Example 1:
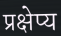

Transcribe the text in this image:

प्रक्षेप्य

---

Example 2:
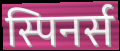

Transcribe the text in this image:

स्पिनर्स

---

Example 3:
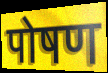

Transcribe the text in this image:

पोषण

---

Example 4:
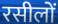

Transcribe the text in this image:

रसीलों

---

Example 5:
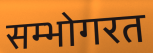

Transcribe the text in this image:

सम्भोगरत